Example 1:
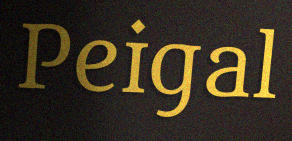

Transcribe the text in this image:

Peigal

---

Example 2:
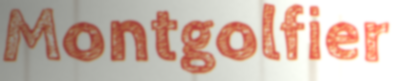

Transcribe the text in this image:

Montgolfier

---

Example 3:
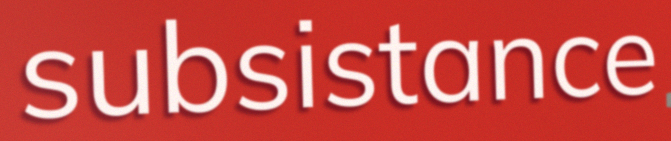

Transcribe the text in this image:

subsistance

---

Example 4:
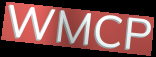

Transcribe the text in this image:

WMCP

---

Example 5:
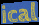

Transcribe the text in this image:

ical